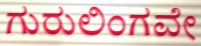
ಗುರುಲಿಂಗವೇ